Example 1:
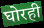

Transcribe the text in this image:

घोरही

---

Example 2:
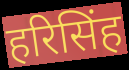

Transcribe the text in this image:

हरिसिंह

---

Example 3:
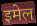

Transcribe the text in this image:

इमेल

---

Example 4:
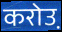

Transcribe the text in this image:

करोउ़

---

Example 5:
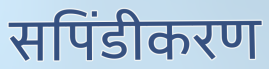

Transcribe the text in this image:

सपिंडीकरण